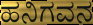
ಹನಿಗವನ